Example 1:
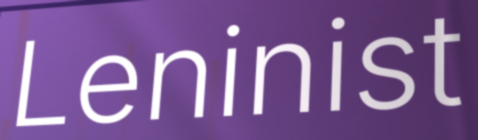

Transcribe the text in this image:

Leninist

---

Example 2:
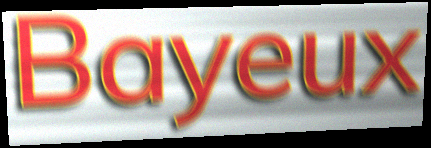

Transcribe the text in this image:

Bayeux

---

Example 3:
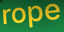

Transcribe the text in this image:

rope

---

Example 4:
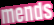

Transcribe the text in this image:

mends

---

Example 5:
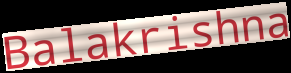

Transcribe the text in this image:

Balakrishna